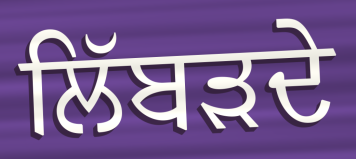
ਲਿੱਬੜਦੇ